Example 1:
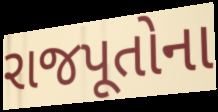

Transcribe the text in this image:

રાજપૂતોના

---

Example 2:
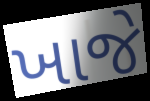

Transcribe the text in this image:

ખાજે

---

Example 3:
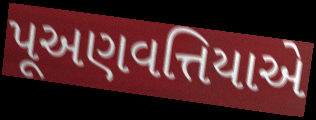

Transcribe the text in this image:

પૂઅણવત્તિયાએ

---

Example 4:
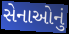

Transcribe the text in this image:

સેનાઓનું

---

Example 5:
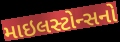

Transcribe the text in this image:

માઇલસ્ટોન્સનો